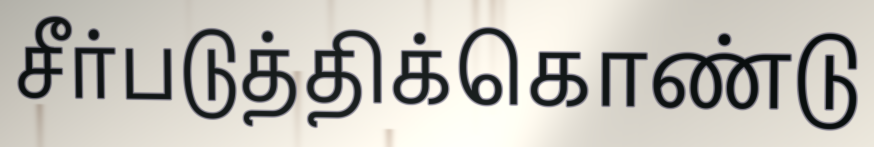
சீர்படுத்திக்கொண்டு